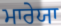
ਮਾਰੇਯਾ